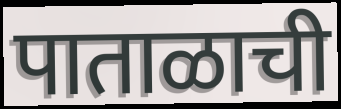
पाताळाची